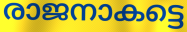
രാജനാകട്ടെ